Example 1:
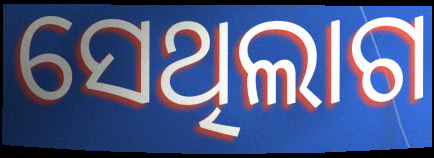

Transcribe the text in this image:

ସେଥିଲାଗ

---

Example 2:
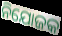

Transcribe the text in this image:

ନିଯୋଜକ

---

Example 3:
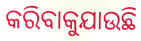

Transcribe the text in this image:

କରିବାକୁଯାଉଛି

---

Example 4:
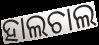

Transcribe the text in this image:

ହାଲଚାଲ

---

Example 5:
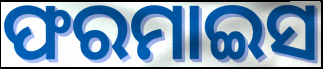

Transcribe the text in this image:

ଫରମାଇସ